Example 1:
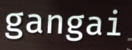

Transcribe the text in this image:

gangai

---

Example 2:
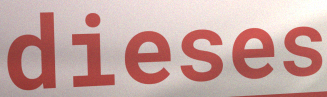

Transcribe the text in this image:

dieses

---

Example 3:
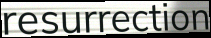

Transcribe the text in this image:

resurrection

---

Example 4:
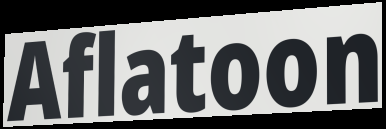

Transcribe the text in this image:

Aflatoon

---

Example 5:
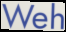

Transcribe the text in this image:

Weh